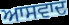
ਆਸਵਾਦ